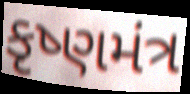
કૃષ્ણમંત્ર